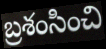
బ్రశంసించి